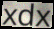
xdx